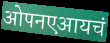
ओपनएआयचं